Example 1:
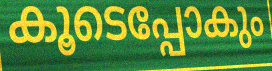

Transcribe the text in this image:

കൂടെപ്പോകും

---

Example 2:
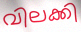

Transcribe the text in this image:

വിലക്കി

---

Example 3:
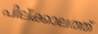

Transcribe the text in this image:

പില്ക്കാലത്ത്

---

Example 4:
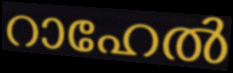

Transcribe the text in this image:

റാഹേൽ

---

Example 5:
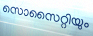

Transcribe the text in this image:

സൊസൈറ്റിയും